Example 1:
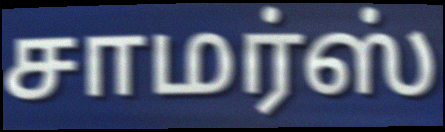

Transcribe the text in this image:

சாமர்ஸ்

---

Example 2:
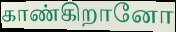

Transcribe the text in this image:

காண்கிறானோ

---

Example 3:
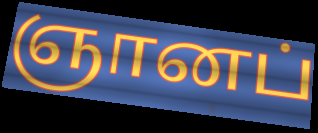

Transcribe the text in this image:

ஞானப்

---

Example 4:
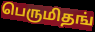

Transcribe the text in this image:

பெருமிதங்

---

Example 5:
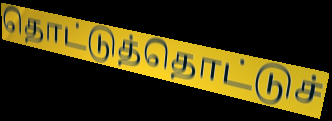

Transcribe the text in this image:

தொட்டுத்தொட்டுச்